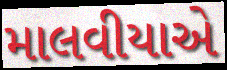
માલવીયાએ